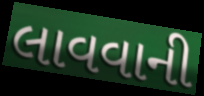
લાવવાની